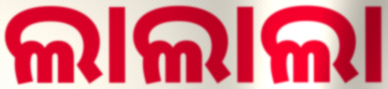
ଲାଲାଲା